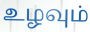
உழவும்